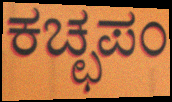
ಕಚ್ಛಪಂ